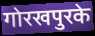
गोरखपुरके